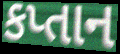
કપ્તાન